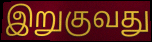
இறுகுவது